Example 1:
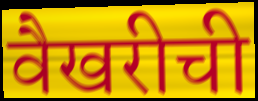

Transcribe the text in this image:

वैखरीची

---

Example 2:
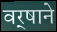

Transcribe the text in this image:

वर्षाने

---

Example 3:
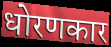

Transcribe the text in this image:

धोरणकार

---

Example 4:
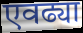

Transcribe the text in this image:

एवढ्या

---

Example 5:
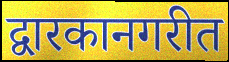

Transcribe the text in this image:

द्वारकानगरीत